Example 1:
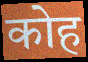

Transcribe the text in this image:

कोह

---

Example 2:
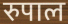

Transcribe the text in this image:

रुपाल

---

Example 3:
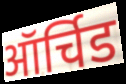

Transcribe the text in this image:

ऑर्चिड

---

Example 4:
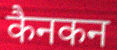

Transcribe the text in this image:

कैनकन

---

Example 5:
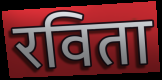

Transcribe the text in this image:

रविता